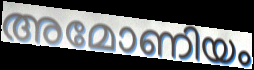
അമോണിയം